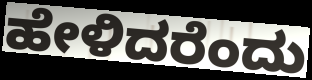
ಹೇಳಿದರೆಂದು